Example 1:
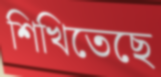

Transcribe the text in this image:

শিখিতেছে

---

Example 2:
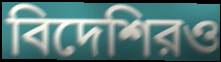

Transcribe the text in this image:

বিদেশিরও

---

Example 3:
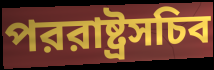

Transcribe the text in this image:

পররাষ্ট্রসচিব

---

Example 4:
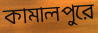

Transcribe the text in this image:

কামালপুরে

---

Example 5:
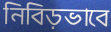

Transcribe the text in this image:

নিবিড়ভাবে